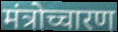
मंत्रोच्चारण